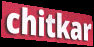
chitkar